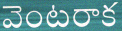
వెంటరాక